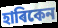
হাৰিকেন